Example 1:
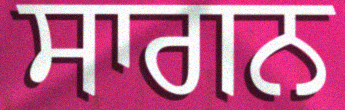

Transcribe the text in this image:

ਸਾਗਨ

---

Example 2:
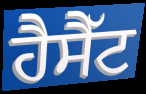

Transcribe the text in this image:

ਹੈਸੈੱਟ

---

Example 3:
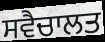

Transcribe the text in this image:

ਸਵੈਚਾਲਤ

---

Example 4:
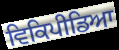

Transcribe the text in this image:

ਵਿਕਿਪੀਡਿਆ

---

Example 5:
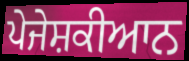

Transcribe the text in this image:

ਪੇਜੇਸ਼ਕੀਆਨ